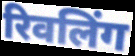
रिवलिंग